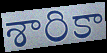
శారికా